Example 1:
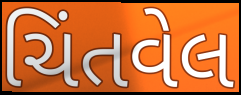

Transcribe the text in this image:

ચિંતવેલ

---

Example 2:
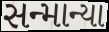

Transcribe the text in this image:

સન્માન્યા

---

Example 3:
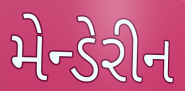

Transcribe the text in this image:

મેન્ડેરીન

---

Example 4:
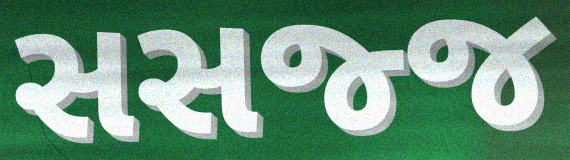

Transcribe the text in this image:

સસજ્જ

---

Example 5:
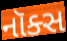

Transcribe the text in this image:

નૉક્સ